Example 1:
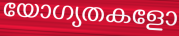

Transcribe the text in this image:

യോഗ്യതകളോ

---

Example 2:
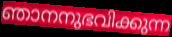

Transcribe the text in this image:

ഞാനനുഭവിക്കുന്ന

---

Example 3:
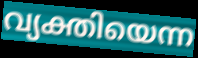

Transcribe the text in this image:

വ്യക്തിയെന്ന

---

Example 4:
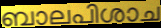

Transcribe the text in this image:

ബാലപിശാച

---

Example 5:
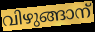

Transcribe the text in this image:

വിഴുങ്ങാന്